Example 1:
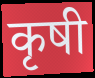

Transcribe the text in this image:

कृषी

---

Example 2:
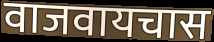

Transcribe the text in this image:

वाजवायचास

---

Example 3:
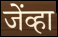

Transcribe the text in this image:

जेंव्हा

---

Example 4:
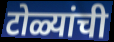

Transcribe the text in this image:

टोळ्यांची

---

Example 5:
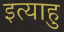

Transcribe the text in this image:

इत्याहु